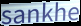
sankhe